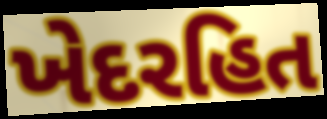
ખેદરહિત